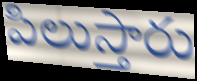
పిలుస్తారు